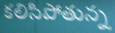
కలిసిపోతున్న